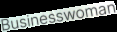
Businesswoman